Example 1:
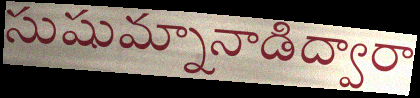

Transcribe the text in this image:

సుషుమ్నానాడిద్వారా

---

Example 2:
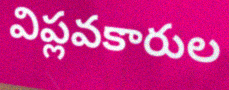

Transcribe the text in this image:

విప్లవకారుల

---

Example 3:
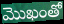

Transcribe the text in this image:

మొఖంతో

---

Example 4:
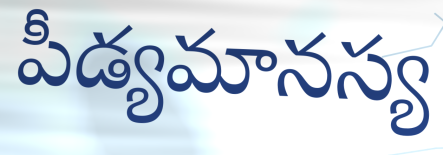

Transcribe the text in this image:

పీడ్యమానస్య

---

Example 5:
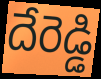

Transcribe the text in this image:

దేరెడ్డి